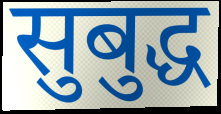
सुबुद्ध